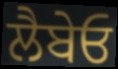
ਲੈਬੇਓ